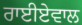
ਰਾਈਏਵਾਲ